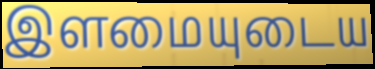
இளமையுடைய